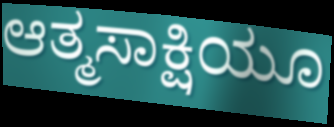
ಆತ್ಮಸಾಕ್ಷಿಯೂ